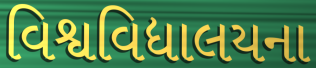
વિશ્વવિદ્યાલયના